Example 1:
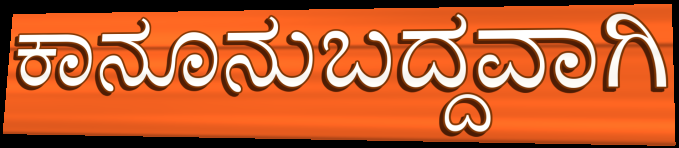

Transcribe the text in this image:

ಕಾನೂನುಬದ್ದವಾಗಿ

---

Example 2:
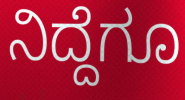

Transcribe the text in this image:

ನಿದ್ದೆಗೂ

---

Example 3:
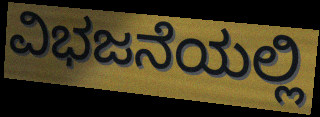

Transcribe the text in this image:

ವಿಭಜನೆಯಲ್ಲಿ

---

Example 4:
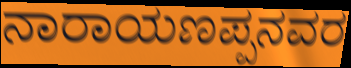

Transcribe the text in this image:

ನಾರಾಯಣಪ್ಪನವರ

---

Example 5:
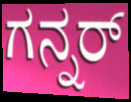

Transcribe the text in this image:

ಗನ್ನರ್